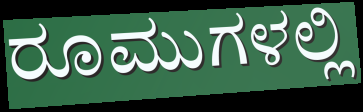
ರೂಮುಗಳಲ್ಲಿ